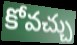
కోవచ్చు